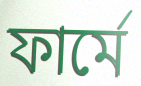
ফার্মে